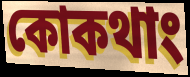
কোকথাং